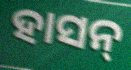
ହାସନ୍